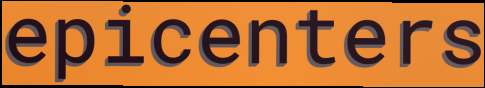
epicenters